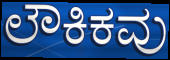
ಲೌಕಿಕವು